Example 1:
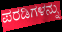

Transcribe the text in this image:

ಪರಡಿಗಳನ್ನು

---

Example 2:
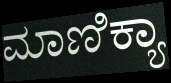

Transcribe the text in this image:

ಮಾಣಿಕ್ಯಾ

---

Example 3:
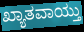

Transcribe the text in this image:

ಖ್ಯಾತವಾಯ್ತು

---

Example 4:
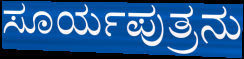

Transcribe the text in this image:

ಸೂರ್ಯಪುತ್ರನು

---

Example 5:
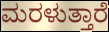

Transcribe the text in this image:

ಮರಳುತ್ತಾರೆ